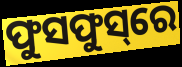
ଫୁସଫୁସ୍‌ରେ